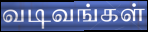
வடிவங்கள்